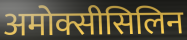
अमोक्सीसिलिन